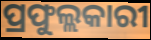
ପ୍ରଫୁଲ୍ଲକାରୀ